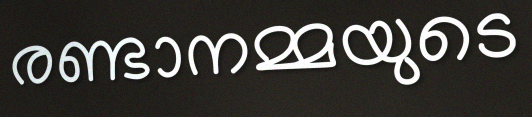
രണ്ടാനമ്മയുടെ